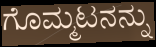
ಗೊಮ್ಮಟನನ್ನು